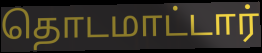
தொடமாட்டார்